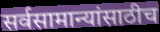
सर्वसामान्यांसाठीच